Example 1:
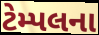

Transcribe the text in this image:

ટેમ્પલના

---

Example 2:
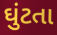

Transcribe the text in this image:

ઘુંટતા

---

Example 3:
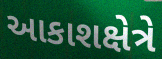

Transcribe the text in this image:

આકાશક્ષેત્રે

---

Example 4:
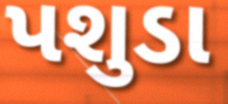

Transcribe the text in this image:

પશુડા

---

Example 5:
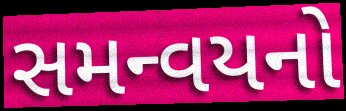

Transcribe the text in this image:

સમન્વયનો